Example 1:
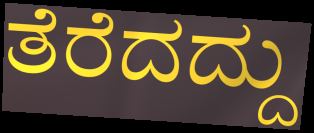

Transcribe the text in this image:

ತೆರೆದದ್ದು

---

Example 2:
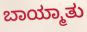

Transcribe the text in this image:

ಬಾಯ್ಮಾತು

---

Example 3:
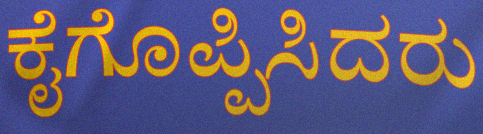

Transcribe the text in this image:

ಕೈಗೊಪ್ಪಿಸಿದರು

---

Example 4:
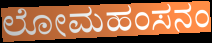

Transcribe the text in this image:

ಲೋಮಹಂಸನಂ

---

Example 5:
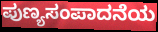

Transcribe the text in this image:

ಪುಣ್ಯಸಂಪಾದನೆಯ